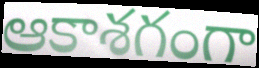
ఆకాశగంగా